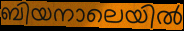
ബിയനാലെയിൽ